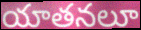
యాతనలూ